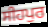
ਸੀਹਪੁਰ